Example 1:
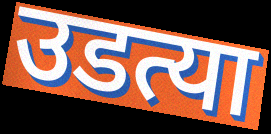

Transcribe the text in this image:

उडत्या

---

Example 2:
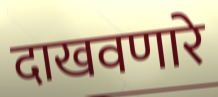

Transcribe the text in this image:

दाखवणारे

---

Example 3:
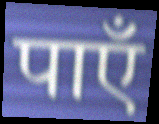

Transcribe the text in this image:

पाएँ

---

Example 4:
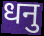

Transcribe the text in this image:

धनु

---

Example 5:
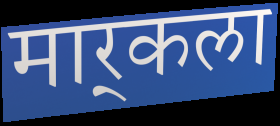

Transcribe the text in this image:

मार्कला